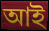
আই